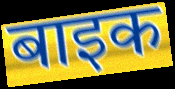
बाइक